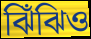
ঝিঁঝিও